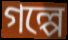
গল্পে